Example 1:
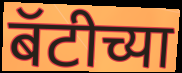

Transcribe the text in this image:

बॅटीच्या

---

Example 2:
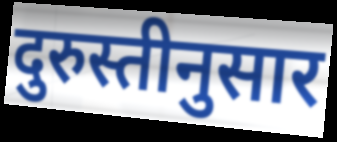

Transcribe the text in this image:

दुरुस्तीनुसार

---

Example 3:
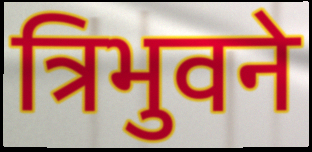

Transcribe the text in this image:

त्रिभुवने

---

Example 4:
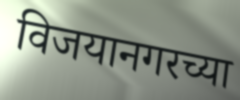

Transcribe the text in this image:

विजयानगरच्या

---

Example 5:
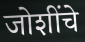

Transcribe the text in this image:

जोशींचे